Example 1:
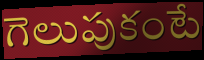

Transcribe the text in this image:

గెలుపుకంటే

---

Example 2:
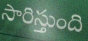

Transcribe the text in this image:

సారిస్తుంది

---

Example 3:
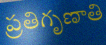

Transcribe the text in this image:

ప్రతిగృణాతి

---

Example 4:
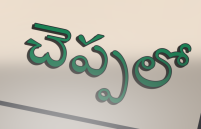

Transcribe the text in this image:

చెప్పలో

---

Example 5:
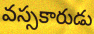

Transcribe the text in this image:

వస్సకారుడు